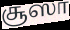
சூஸா